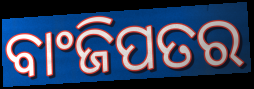
ବାଂଜିପତର